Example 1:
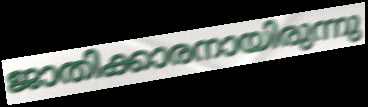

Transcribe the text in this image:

ജാതിക്കാരനായിരുന്നു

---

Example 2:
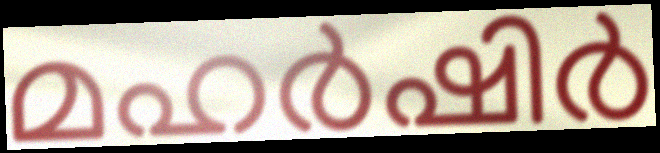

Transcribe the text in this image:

മഹർഷിർ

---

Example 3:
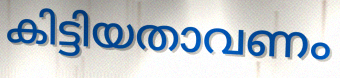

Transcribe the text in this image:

കിട്ടിയതാവണം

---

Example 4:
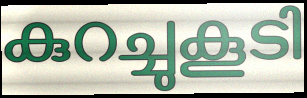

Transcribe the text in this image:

കുറച്ചുകൂടി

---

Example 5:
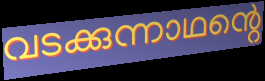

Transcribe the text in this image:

വടക്കുന്നാഥന്റെ